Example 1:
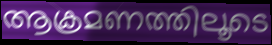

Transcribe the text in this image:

ആക്രമണത്തിലൂടെ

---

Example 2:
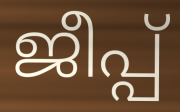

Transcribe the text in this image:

ജീപ്പ്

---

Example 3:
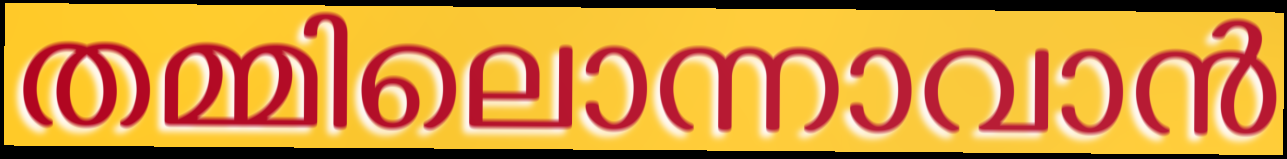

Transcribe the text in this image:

തമ്മിലൊന്നാവാൻ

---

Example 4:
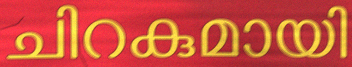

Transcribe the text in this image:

ചിറകുമായി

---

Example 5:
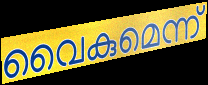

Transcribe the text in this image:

വൈകുമെന്ന്